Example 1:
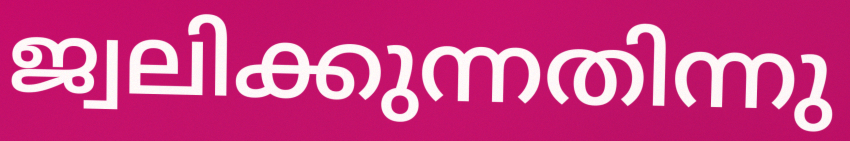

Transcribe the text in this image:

ജ്വലിക്കുന്നതിന്നു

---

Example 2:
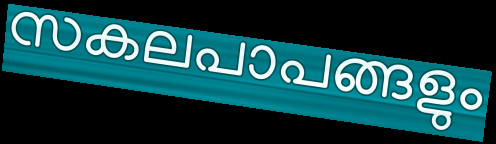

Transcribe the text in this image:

സകലപാപങ്ങളും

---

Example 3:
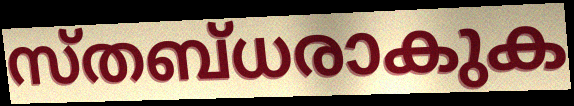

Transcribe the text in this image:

സ്തബ്ധരാകുക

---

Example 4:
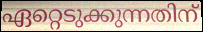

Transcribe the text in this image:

ഏറ്റെടുക്കുന്നതിന്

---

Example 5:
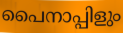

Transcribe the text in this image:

പൈനാപ്പിളും